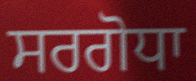
ਸਰਗੋਧਾ